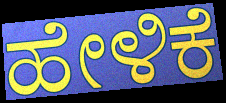
ಹೇಳಿಕೆ